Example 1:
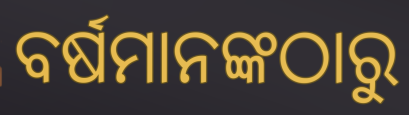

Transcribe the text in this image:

ବର୍ଷମାନଙ୍କଠାରୁ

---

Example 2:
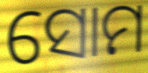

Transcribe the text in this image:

ସୋମ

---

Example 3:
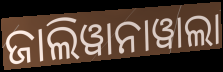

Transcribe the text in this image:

ଜାଲିୱାନାୱାଲା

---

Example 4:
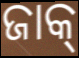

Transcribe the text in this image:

ଜାକ୍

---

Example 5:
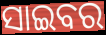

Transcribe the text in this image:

ସାଇବର